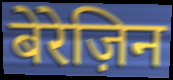
बेरेज़िन